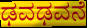
ಢವಢವನೆ